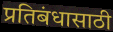
प्रतिबंधासाठी